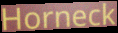
Horneck